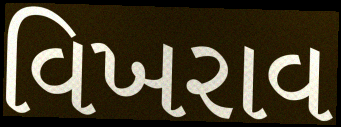
વિખરાવ